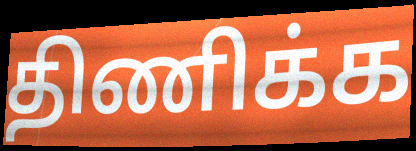
திணிக்க